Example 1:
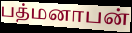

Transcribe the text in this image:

பத்மனாபன்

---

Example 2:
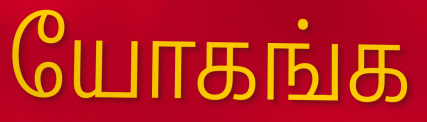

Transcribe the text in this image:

யோகங்க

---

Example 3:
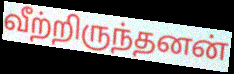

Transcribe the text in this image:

வீற்றிருந்தனன்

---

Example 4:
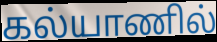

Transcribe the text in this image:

கல்யாணில்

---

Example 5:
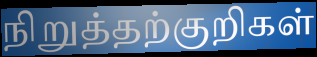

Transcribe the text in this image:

நிறுத்தற்குறிகள்